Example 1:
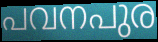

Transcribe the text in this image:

പവനപുര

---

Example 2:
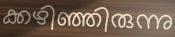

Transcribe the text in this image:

ക്കഴിഞ്ഞിരുന്നു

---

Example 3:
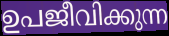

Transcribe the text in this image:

ഉപജീവിക്കുന്ന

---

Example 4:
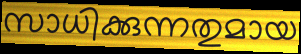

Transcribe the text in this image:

സാധിക്കുന്നതുമായ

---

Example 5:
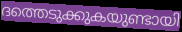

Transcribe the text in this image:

ദത്തെടുക്കുകയുണ്ടായി